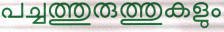
പച്ചത്തുരുത്തുകളും